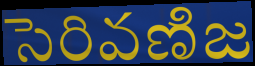
సెరివణిజ